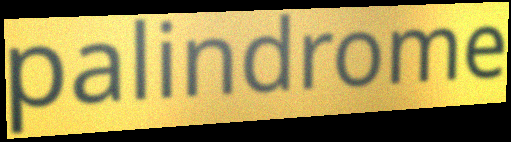
palindrome